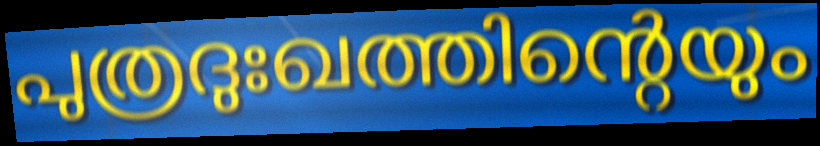
പുത്രദുഃഖത്തിന്റെയും